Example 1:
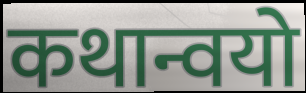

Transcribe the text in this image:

कथान्वयो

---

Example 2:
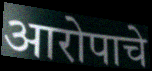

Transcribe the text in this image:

आरोपाचे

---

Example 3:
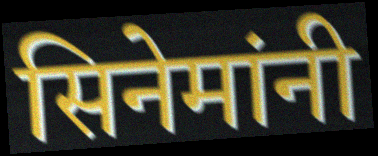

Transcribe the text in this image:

सिनेमांनी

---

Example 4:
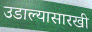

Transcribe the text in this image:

उडाल्यासारखी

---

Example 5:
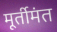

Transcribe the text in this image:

मूर्तीमंत